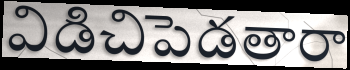
విడిచిపెడతారా